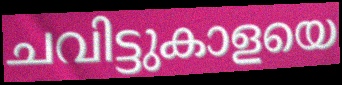
ചവിട്ടുകാളയെ